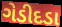
ગેડીદડા